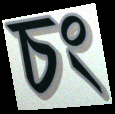
চং